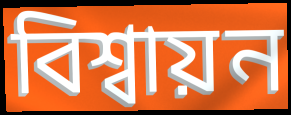
বিশ্বায়ন